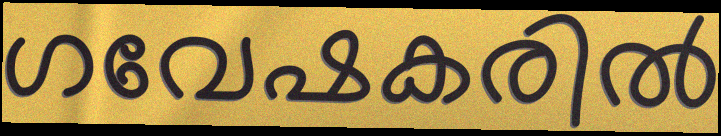
ഗവേഷകരിൽ